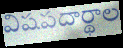
విషపదార్థాల